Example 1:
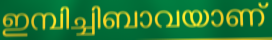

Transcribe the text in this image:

ഇമ്പിച്ചിബാവയാണ്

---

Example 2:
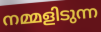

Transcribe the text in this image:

നമ്മളിടുന്ന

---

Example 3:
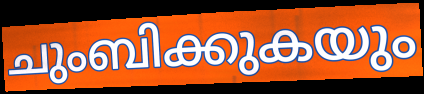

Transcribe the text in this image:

ചുംബിക്കുകയും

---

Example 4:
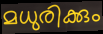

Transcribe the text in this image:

മധുരിക്കും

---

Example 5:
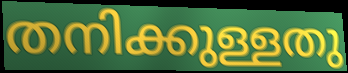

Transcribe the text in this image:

തനിക്കുള്ളതു